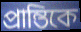
প্রান্তিকে